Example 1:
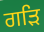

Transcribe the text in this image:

ਗੜਿ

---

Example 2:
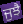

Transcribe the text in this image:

ਜੁਝੈ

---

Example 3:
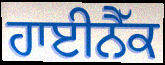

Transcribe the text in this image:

ਹਾਈਨੈੱਕ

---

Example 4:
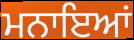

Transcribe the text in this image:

ਮਨਾਇਆਂ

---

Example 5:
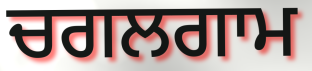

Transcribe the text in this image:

ਚਗਲਗਾਮ